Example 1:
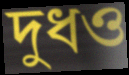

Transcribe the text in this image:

দুধও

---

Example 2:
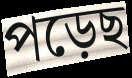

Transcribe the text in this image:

পড়েছ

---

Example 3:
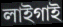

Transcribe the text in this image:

লাইগাই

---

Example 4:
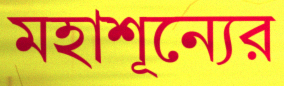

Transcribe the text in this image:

মহাশূন্যের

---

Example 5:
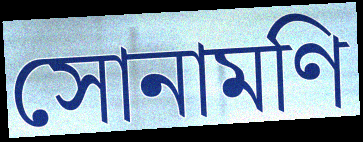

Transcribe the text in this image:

সোনামণি